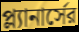
প্ল্যানার্সের